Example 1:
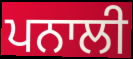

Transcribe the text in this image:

ਪਨਾਲੀ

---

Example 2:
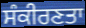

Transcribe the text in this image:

ਸੰਕੀਰਣਤਾ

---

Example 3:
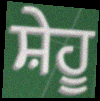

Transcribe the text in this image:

ਸ਼ੇਹੂ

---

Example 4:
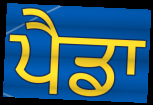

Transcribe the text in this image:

ਪੈਡਾ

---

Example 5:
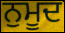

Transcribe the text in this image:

ਨੁਮੂਦ